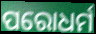
ପରୋଧର୍ମ